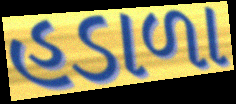
હડાળા